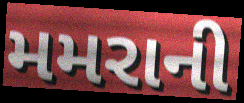
મમરાની